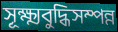
সূক্ষ্মবুদ্ধিসম্পন্ন